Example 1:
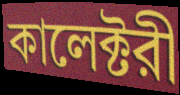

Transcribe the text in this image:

কালেক্টরী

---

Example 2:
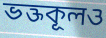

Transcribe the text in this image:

ভক্তকূলও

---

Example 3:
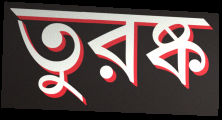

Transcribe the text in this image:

তুরষ্ক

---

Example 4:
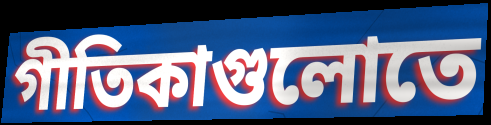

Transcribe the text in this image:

গীতিকাগুলোতে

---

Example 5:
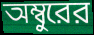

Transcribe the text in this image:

অম্বুরের